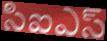
సిఐఎస్